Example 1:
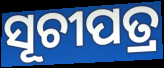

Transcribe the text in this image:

ସୂଚୀପତ୍ର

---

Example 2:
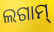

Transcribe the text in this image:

ଲଗାମ୍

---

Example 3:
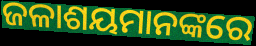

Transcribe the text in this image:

ଜଳାଶୟମାନଙ୍କରେ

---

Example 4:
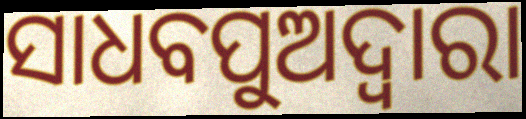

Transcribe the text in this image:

ସାଧବପୁଅଦ୍ୱାରା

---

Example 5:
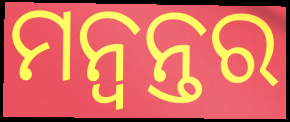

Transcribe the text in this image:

ମନ୍ବନ୍ତର